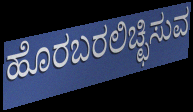
ಹೊರಬರಲಿಚ್ಛಿಸುವ